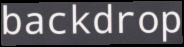
backdrop